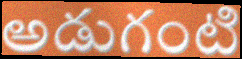
అడుగంటి